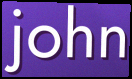
john